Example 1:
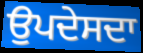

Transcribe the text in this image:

ਉਪਦੇਸਦਾ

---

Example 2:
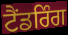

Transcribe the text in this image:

ਟੈਂਡਰਿੰਗ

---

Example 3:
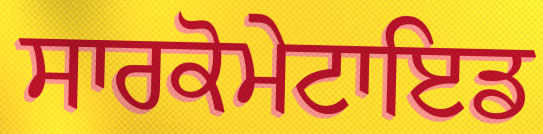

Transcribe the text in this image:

ਸਾਰਕੋਮੇਟਾਇਡ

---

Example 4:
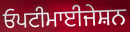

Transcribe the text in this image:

ਓਪਟੀਮਾਈਜੇਸ਼ਨ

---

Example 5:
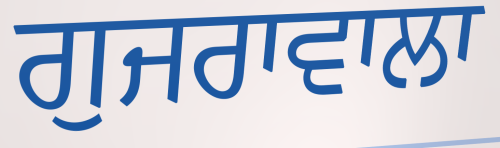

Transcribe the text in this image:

ਗੁਜਰਾਵਾਲਾ